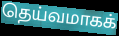
தெய்வமாகக்